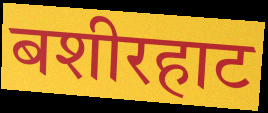
बशीरहाट